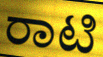
ರಾಟಿ